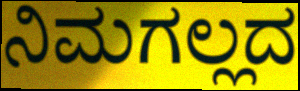
ನಿಮಗಲ್ಲದ